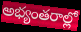
అభ్యంతరాల్లో